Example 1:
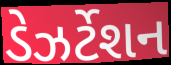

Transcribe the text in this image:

ડેઝર્ટેશન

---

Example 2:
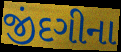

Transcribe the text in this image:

જીંદગીના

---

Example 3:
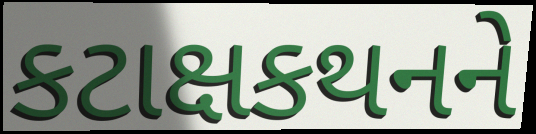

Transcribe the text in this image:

કટાક્ષકથનને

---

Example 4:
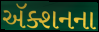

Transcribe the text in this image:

ઍક્શનના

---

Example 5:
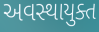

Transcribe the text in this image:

અવસ્થાયુક્ત